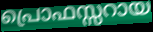
പ്രൊഫസ്സറായ